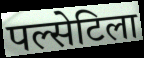
पल्सेटिला